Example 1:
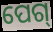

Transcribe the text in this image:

ପେଗ୍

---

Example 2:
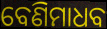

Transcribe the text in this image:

ବେଣିମାଧବ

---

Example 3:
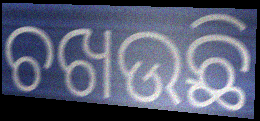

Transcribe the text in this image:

ଚଖଉଛି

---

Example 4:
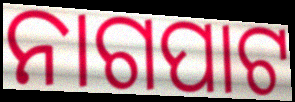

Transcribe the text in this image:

ନାଗପାଟ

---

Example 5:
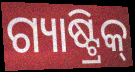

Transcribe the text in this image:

ଗ୍ୟାଷ୍ଟ୍ରିକ୍